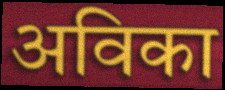
अविका